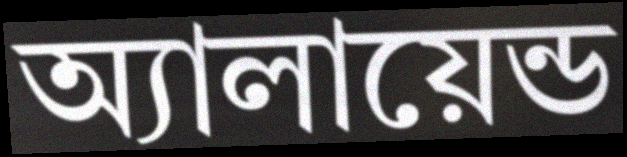
অ্যালায়েন্ড